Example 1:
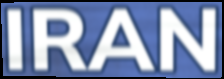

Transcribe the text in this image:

IRAN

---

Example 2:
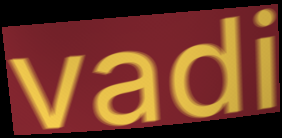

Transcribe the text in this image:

vadi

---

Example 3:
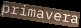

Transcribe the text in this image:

primavera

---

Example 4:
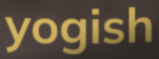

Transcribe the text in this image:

yogish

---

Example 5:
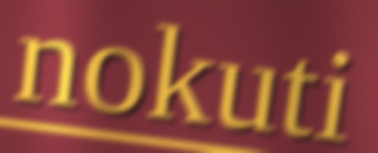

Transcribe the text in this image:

nokuti